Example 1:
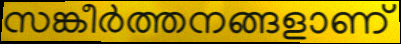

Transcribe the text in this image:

സങ്കീർത്തനങ്ങളാണ്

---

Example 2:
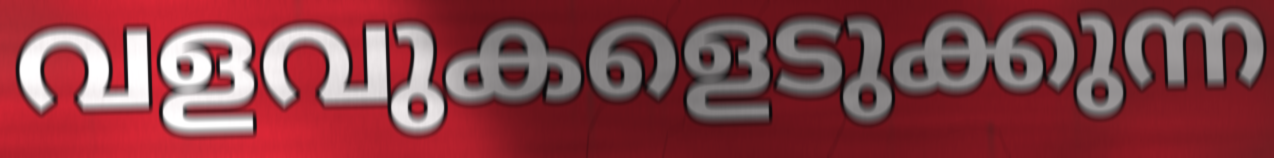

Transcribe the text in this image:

വളവുകളെടുക്കുന്ന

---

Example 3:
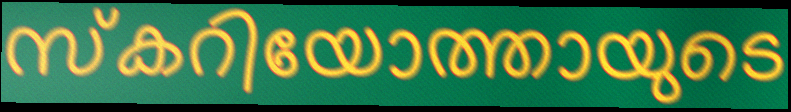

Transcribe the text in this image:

സ്കറിയോത്തായുടെ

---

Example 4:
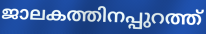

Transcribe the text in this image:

ജാലകത്തിനപ്പുറത്ത്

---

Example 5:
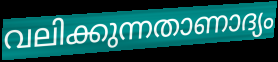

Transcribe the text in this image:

വലിക്കുന്നതാണാദ്യം